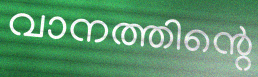
വാനത്തിന്റെ